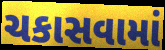
ચકાસવામાં